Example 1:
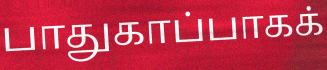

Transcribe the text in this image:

பாதுகாப்பாகக்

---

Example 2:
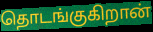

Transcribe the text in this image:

தொடங்குகிறான்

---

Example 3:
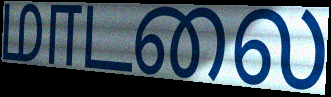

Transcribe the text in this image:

மாடலை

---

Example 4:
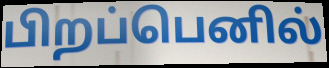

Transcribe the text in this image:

பிறப்பெனில்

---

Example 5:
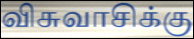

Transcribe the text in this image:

விசுவாசிக்கு